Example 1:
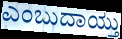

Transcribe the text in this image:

ಎಂಬುದಾಯ್ತು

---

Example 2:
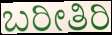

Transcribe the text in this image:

ಬರೀತಿರಿ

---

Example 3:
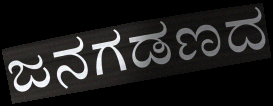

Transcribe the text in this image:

ಜನಗಡಣದ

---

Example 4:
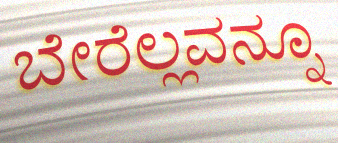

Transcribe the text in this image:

ಬೇರೆಲ್ಲವನ್ನೂ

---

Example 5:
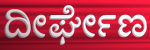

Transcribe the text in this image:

ದೀರ್ಘೇಣ